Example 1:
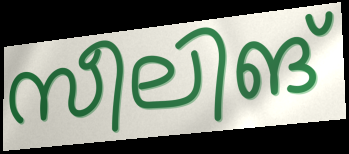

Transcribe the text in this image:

സീലിങ്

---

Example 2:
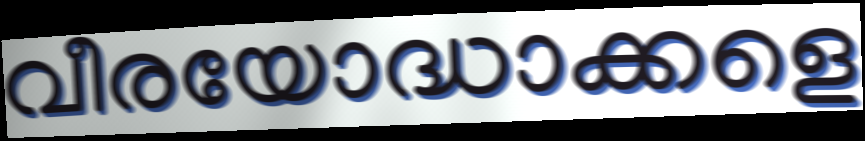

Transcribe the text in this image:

വീരയോദ്ധാക്കളെ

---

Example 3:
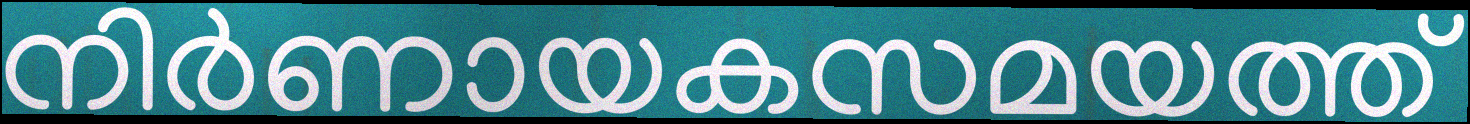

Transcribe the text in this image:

നിർണായകസമയത്ത്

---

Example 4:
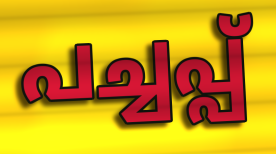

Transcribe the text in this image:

പച്ചപ്പ്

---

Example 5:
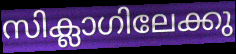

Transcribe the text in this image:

സിക്ലാഗിലേക്കു